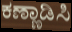
ಕಣ್ಣಾಡಿಸಿ